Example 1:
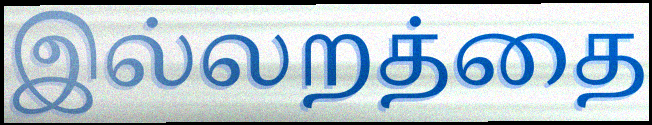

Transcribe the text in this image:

இல்லறத்தை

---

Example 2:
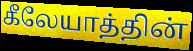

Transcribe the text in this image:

கீலேயாத்தின்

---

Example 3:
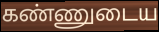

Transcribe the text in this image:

கண்ணுடைய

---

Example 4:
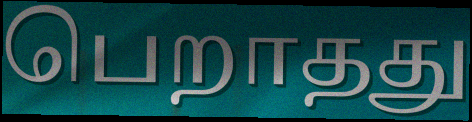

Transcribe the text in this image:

பெறாதது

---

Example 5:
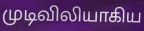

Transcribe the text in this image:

முடிவிலியாகிய